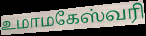
உமாமகேஸ்வரி